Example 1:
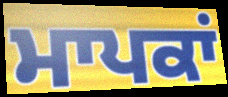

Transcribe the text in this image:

ਮਾਪਕਾਂ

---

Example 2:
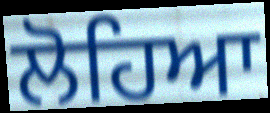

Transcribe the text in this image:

ਲੋਹਿਆ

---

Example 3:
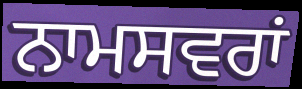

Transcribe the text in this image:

ਨਾਮਸਵਰਾਂ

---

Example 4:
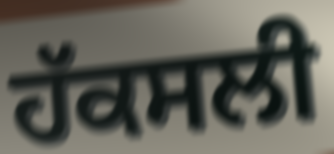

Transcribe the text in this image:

ਹੱਕਸਲੀ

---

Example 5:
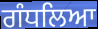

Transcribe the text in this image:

ਗੰਧਲਿਆ